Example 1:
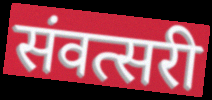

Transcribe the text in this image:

संवत्सरी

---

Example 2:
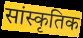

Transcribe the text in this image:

सांस्‍कृतिक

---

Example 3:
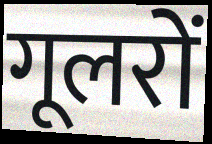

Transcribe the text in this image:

गूलरों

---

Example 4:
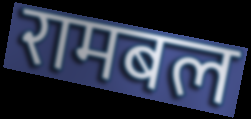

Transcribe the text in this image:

रामबल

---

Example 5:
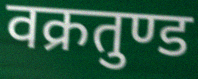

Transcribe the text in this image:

वक्रतुण्ड